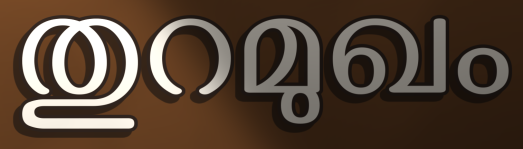
തുറമുഖം